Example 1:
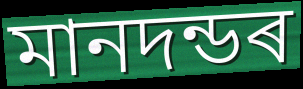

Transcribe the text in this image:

মানদন্ডৰ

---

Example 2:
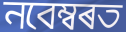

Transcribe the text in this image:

নবেম্বৰত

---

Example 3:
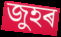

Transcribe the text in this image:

জুহৰ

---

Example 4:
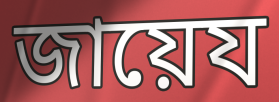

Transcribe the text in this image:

জায়েয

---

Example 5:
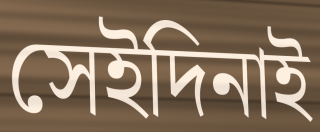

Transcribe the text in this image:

সেইদিনাই